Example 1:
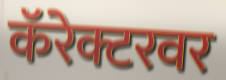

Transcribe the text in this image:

कॅरेक्टरवर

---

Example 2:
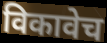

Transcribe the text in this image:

विकावेच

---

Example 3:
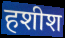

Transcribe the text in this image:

हशीश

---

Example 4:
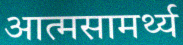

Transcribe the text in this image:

आत्मसामर्थ्य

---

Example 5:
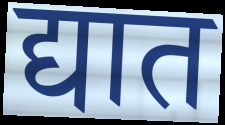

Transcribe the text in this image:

द्यात